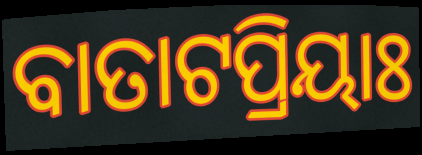
ବାତାଟପ୍ରିୟାଃ